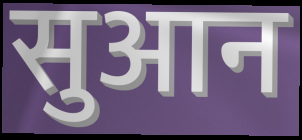
सुआन